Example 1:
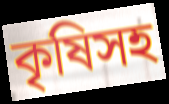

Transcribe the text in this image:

কৃষিসহ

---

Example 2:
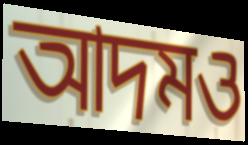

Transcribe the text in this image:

আদমও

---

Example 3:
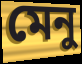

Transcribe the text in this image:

মেনু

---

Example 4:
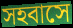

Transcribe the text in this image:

সহবাসে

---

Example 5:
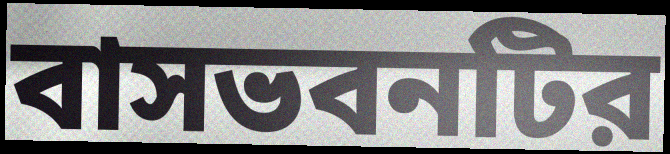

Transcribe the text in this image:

বাসভবনটির